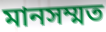
মানসম্মত